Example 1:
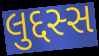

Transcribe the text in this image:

લુદ્દસ્સ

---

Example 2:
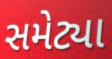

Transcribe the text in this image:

સમેટ્યા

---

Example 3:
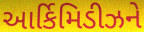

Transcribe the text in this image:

આર્કિમિડીઝને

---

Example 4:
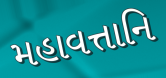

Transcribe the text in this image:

મહાવત્તાનિ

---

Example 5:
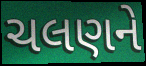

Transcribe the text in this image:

ચલણને